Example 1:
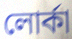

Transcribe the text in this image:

লোর্কা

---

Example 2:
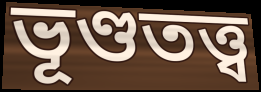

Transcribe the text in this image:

ভূণ্ডতত্ত্ব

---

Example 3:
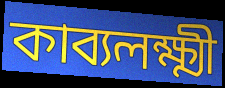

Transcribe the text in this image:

কাব্যলক্ষ্মী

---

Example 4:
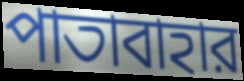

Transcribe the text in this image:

পাতাবাহার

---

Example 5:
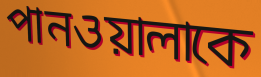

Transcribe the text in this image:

পানওয়ালাকে